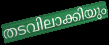
തടവിലാക്കിയും